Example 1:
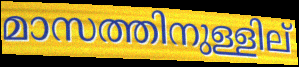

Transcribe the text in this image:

മാസത്തിനുള്ളില്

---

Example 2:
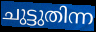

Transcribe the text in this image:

ചുട്ടുതിന്ന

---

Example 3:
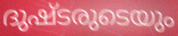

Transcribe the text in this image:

ദുഷ്ടരുടെയും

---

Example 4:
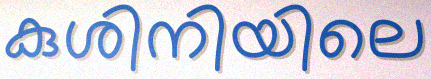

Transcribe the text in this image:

കുശിനിയിലെ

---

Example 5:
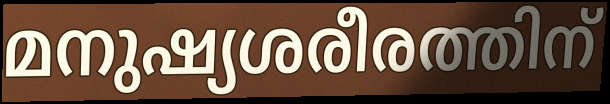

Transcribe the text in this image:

മനുഷ്യശരീരത്തിന്